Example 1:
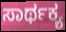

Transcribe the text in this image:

ಸಾರ್ಥಕ್ಯ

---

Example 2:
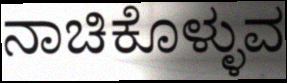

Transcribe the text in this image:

ನಾಚಿಕೊಳ್ಳುವ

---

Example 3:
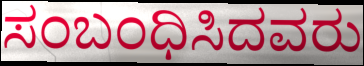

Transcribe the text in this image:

ಸಂಬಂಧಿಸಿದವರು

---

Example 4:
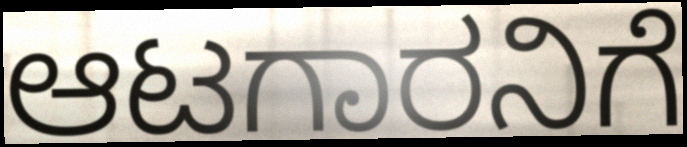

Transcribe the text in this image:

ಆಟಗಾರನಿಗೆ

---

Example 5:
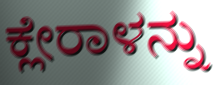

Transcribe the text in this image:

ಕ್ಲೇರಾಳನ್ನು